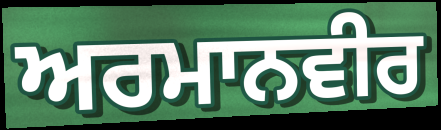
ਅਰਮਾਨਵੀਰ